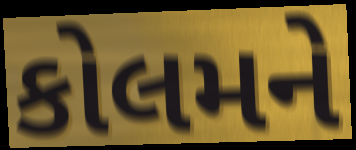
કોલમને